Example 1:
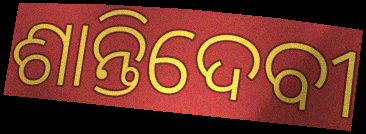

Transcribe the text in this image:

ଶାନ୍ତିଦେବୀ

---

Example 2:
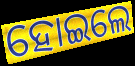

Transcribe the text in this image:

ହୋଇଲେ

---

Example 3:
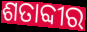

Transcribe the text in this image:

ଶତାବ୍ଦୀର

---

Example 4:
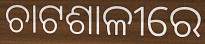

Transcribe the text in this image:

ଚାଟଶାଳୀରେ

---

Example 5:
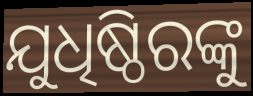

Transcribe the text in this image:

ଯୁଧିଷ୍ଠିରଙ୍କୁ